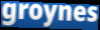
groynes